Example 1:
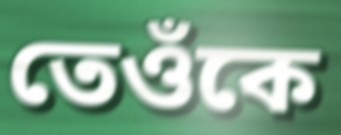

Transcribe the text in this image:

তেওঁকে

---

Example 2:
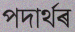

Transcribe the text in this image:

পদাৰ্থৰ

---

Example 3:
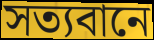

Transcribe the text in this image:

সত্যবানে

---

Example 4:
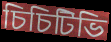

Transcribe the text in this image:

চিচিটিভি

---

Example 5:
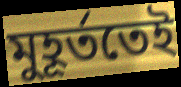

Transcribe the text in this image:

মুহূৰ্ততেই